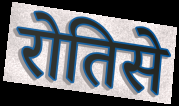
रोतिसे